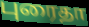
புரைதா